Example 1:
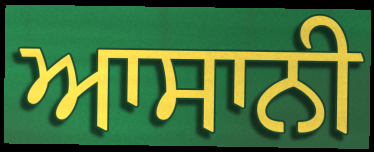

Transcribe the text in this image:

ਆਸਾਨੀ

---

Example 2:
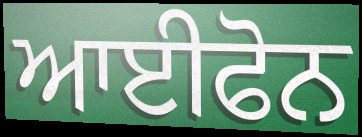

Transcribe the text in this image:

ਆਈਫੋਨ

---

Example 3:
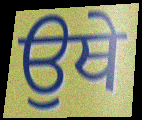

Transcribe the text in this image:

ਉਥੇ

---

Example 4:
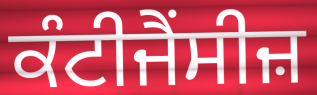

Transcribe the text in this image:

ਕੰਟੀਜੈਂਸੀਜ਼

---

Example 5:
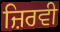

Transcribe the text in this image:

ਜ਼ਿਰਵੀ